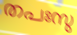
തപഃസു